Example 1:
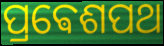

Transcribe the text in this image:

ପ୍ରଵେଶପଥ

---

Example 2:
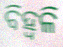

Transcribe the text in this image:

ବିହ୍ୱଳି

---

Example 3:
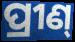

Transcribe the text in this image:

ପ୍ରୀଣ୍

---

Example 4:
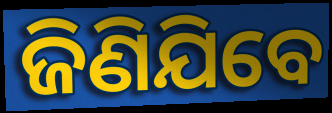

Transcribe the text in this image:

ଜିଣିଯିବେ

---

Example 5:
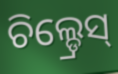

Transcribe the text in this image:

ଚିଲ୍ଡ୍ରେସ୍